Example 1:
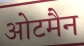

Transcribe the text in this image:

ओटमैन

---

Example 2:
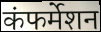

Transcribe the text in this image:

कंफर्मेशन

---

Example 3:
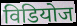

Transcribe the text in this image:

विडियोज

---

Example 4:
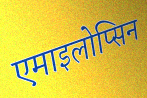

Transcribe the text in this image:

एमाइलोप्सिन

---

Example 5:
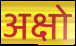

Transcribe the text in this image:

अक्षो